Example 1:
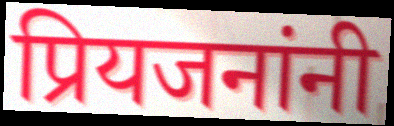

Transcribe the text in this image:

प्रियजनांनी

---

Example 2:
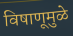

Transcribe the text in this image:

विषाणूमुळे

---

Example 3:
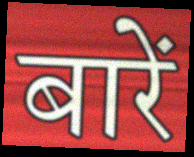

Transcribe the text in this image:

बारें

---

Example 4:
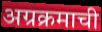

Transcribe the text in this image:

अग्रक्रमाची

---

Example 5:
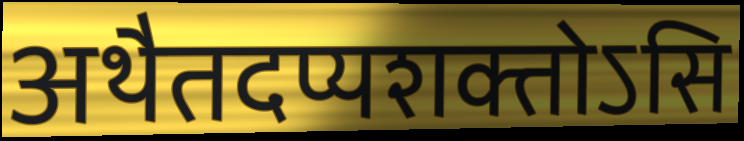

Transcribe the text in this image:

अथैतदप्यशक्तोऽसि